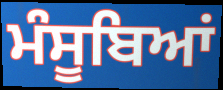
ਮੰਸੂਬਿਆਂ